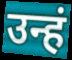
उन्हं